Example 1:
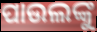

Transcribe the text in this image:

ପାଉଲଙ୍କୁ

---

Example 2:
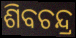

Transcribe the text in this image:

ଶିବଚନ୍ଦ୍ର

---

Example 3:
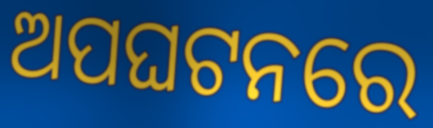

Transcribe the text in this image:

ଅପଘଟନରେ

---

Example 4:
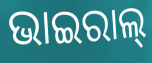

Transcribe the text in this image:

ଭାଇରାଲ୍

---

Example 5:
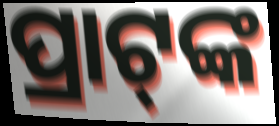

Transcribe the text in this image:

ପ୍ରାଟ୍‍ଙ୍କ